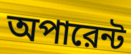
অপারেন্ট